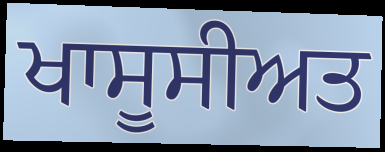
ਖਾਸੂਸੀਅਤ